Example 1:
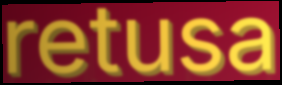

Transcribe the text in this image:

retusa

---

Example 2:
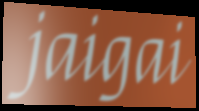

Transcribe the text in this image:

jaigai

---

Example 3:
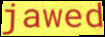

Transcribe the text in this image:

jawed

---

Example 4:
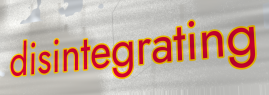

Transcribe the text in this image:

disintegrating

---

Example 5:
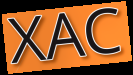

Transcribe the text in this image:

XAC